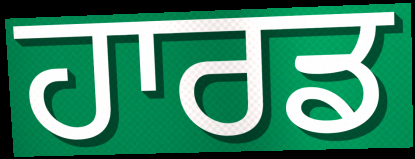
ਹਾਰਡ